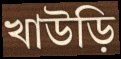
খাউড়ি